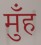
मुँह